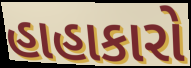
હાહાકારો